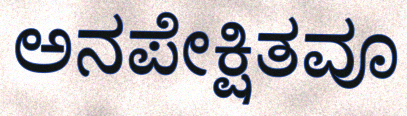
ಅನಪೇಕ್ಷಿತವೂ